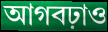
আগবঢ়াও